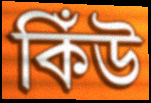
কিঁউ